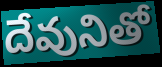
దేవునితో